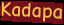
Kadapa